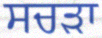
ਸਚੜਾ